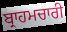
ਬ੍ਰਾਹਮਚਾਰੀ